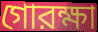
গোরক্ষা